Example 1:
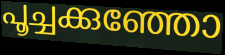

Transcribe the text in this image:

പൂച്ചക്കുഞ്ഞോ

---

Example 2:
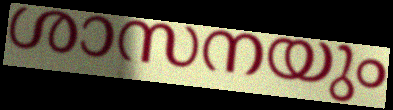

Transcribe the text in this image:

ശാസനയും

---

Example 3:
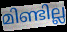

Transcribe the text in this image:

മിണ്ടില്ല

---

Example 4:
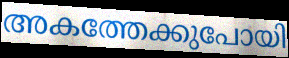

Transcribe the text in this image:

അകത്തേക്കുപോയി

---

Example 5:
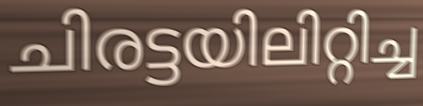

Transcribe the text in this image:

ചിരട്ടയിലിറ്റിച്ച